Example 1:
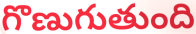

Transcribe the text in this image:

గొణుగుతుంది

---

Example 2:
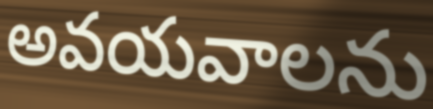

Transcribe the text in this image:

అవయవాలను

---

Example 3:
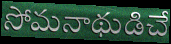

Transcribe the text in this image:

సోమనాథుడిచే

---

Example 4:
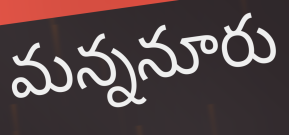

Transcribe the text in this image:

మన్ననూరు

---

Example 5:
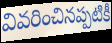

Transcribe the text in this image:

వివరించినప్పటికీ